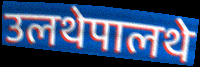
उलथेपालथे